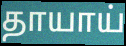
தாயாய்